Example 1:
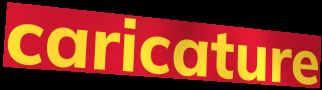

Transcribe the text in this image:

caricature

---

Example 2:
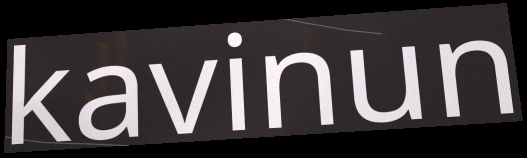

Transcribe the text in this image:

kavinun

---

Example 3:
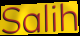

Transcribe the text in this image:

Salih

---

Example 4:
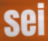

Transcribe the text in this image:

sei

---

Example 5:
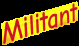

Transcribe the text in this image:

Militant